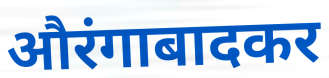
औरंगाबादकर